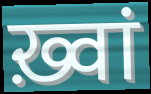
ख़्वां